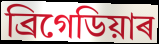
ব্ৰিগেডিয়াৰ